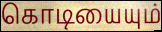
கொடியையும்